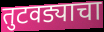
तुटवड्याचा